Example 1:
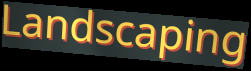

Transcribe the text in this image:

Landscaping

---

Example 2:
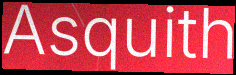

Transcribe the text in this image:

Asquith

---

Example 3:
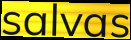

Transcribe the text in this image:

salvas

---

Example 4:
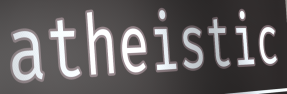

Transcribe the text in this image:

atheistic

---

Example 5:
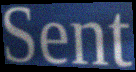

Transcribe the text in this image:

Sent